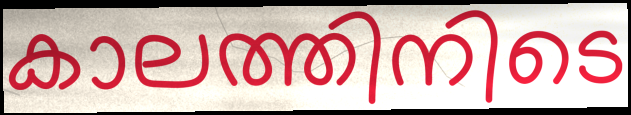
കാലത്തിനിടെ